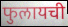
फुलायची